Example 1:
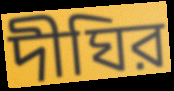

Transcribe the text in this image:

দীঘির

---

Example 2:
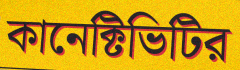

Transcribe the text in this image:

কানেক্টিভিটির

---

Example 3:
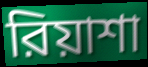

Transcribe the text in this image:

রিয়াশা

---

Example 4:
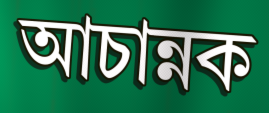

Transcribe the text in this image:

আচান্নক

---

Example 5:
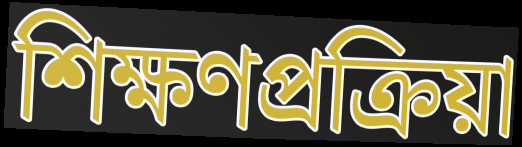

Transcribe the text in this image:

শিক্ষণপ্রক্রিয়া